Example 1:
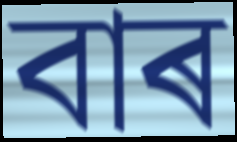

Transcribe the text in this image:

বাৰ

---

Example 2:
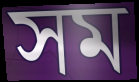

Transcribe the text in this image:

সম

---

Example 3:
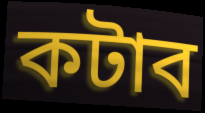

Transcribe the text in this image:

কটাব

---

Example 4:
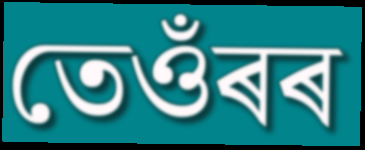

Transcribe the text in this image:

তেওঁৰৰ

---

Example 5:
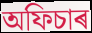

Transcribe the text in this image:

অফিচাৰ